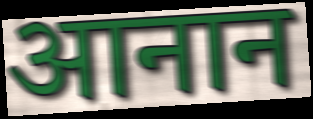
आनान